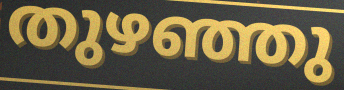
തുഴഞ്ഞു